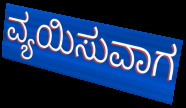
ವ್ಯಯಿಸುವಾಗ